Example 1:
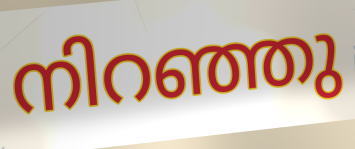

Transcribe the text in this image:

നിറഞ്ഞു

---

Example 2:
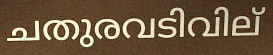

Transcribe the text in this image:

ചതുരവടിവില്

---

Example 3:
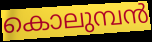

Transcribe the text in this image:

കൊലുമ്പൻ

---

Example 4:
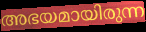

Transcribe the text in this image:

അഭയമായിരുന്ന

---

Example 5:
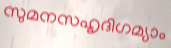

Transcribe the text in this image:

സുമനസഹൃദിഗമ്യാം